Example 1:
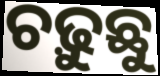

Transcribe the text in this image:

ଚଢ଼ୁଛୁ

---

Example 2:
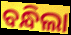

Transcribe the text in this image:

ବନ୍ଧିଲା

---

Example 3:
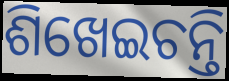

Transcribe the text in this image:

ଶିଖେଇଚନ୍ତି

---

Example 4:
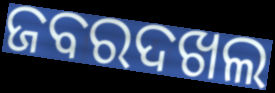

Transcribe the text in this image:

ଜବରଦଖଲ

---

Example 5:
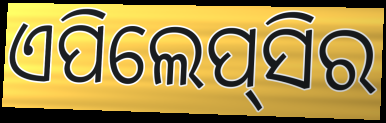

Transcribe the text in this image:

ଏପିଲେପ୍‌ସିର